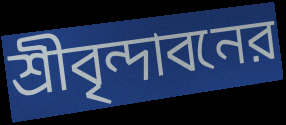
শ্রীবৃন্দাবনের